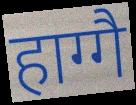
हाग्गै